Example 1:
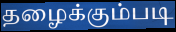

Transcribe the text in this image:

தழைக்கும்படி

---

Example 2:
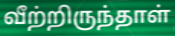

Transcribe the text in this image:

வீற்றிருந்தாள்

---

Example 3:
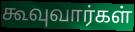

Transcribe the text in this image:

கூவுவார்கள்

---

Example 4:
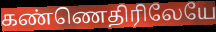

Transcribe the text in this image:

கண்ணெதிரிலேயே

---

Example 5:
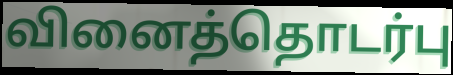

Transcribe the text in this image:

வினைத்தொடர்பு